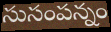
సుసంపన్నం